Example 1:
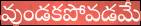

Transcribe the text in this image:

వుండకపోవడమే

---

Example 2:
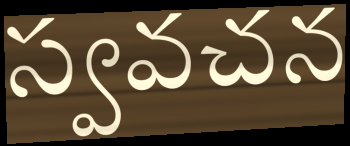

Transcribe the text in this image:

స్వవచన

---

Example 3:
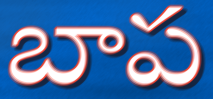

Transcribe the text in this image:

బాప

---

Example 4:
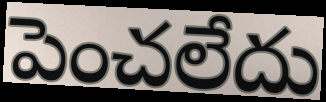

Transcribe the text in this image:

పెంచలేదు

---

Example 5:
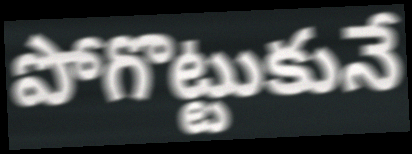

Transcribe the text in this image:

పోగొట్టుకునే